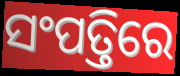
ସଂପତ୍ତିରେ